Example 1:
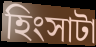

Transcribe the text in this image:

হিংসাটা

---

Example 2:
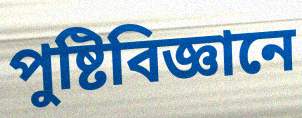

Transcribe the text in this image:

পুষ্টিবিজ্ঞানে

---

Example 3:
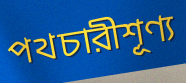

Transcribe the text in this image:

পথচারীশূণ্য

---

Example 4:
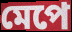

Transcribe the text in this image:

মেপে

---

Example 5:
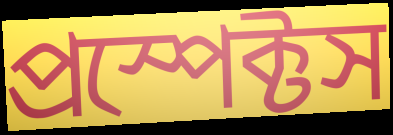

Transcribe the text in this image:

প্রস্পেক্টস